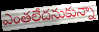
ఎంతలేదనుకున్నా